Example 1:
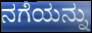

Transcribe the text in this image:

ನಗೆಯನ್ನು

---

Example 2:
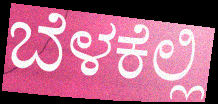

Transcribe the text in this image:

ಬೆಳಕೆಲ್ಲಿ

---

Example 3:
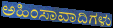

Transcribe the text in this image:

ಅಹಿಂಸಾವಾದಿಗಳು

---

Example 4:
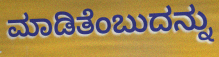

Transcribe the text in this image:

ಮಾಡಿತೆಂಬುದನ್ನು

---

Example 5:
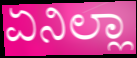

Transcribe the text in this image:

ಏನಿಲ್ಲಾ